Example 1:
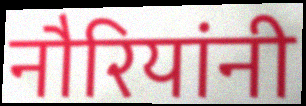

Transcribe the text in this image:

नौरियांनी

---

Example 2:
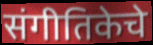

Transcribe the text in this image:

संगीतिकेचे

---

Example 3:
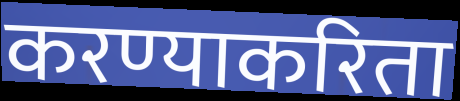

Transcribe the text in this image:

करण्याकरिता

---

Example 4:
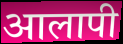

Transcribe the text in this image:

आलापी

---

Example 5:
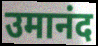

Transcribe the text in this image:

उमानंद